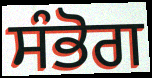
ਸੰਭੋਗ